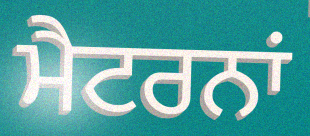
ਮੈਟਰਨਾਂ